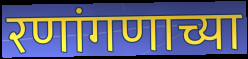
रणांगणाच्या